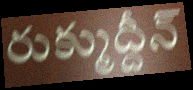
రుక్ముద్దీన్